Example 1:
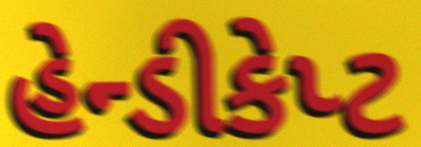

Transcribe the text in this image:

હેન્ડીકેપ્ટ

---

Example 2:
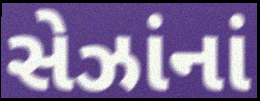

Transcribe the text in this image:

સેઝાંનાં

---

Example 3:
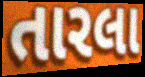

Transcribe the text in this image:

તારલા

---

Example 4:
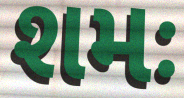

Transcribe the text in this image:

શમઃ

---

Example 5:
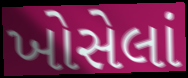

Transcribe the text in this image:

ખોસેલાં